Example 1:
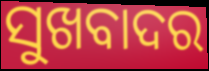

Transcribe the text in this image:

ସୁଖବାଦର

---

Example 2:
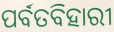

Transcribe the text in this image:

ପର୍ବତବିହାରୀ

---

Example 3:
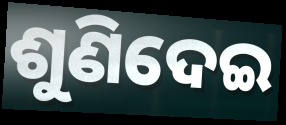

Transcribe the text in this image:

ଶୁଣିଦେଇ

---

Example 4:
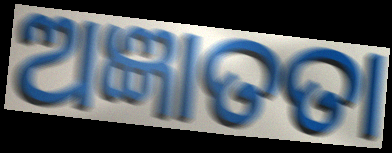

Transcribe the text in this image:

ଅଜ୍ଞାତତା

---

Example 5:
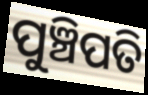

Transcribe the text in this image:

ପୁଞ୍ଚିପତି